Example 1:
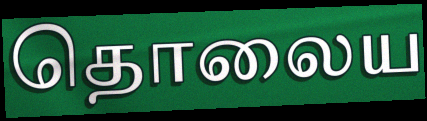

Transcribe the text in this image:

தொலைய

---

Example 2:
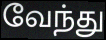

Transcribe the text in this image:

வேந்து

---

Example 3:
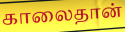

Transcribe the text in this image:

காலைதான்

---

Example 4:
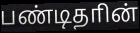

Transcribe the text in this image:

பண்டிதரின்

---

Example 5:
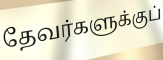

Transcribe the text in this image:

தேவர்களுக்குப்